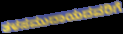
ತಳಸಮುದಾಯದವರಿಗೆ